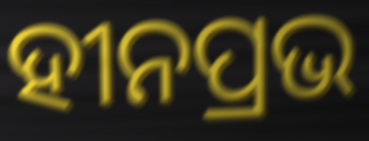
ହୀନପ୍ରଭ